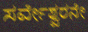
ಸರ್ವೇಶ್ವರನೇ